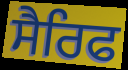
ਸੈਰਿਫ